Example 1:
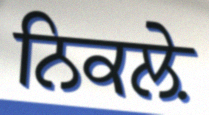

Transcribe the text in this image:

ਨਿਕਲ਼ੇ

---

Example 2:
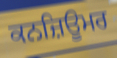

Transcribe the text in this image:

ਕਨਜ਼ਿਊਮਰ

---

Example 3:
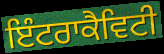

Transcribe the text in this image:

ਇੰਟਰਾਕੈਵਿਟੀ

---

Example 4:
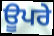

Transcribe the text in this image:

ਊਪਰੇ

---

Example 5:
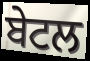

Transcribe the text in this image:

ਬੇਟਲ